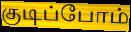
குடிப்போம்